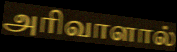
அரிவாளால்